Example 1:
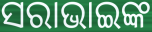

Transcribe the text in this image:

ସରାଭାଇଙ୍କ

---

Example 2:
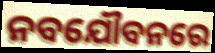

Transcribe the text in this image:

ନବଯୌବନରେ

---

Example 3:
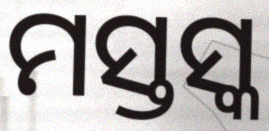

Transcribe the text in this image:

ମସ୍ତସ୍କ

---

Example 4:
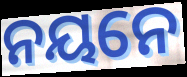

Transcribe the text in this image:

ନୟନେ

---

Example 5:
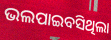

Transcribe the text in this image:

ଭଲପାଇବସିଥିଲା